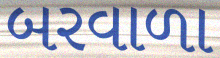
બરવાળા